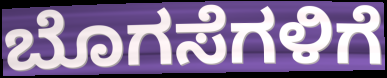
ಬೊಗಸೆಗಳಿಗೆ